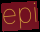
epi